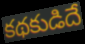
కథకుడిదే